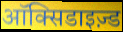
ऑक्सिडाइज़्ड